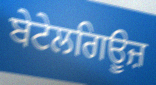
ਬੇਟੇਲਗਿਊਜ਼